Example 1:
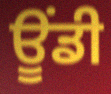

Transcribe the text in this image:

ਊਂਡੀ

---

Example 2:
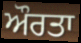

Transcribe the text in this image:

ਔਰਤਾ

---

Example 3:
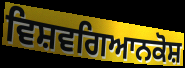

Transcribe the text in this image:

ਵਿਸ਼ਵਗਿਆਨਕੋਸ਼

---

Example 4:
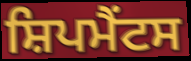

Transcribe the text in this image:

ਸ਼ਿਪਮੈਂਟਸ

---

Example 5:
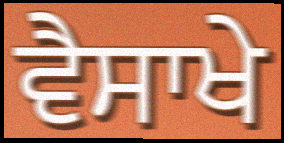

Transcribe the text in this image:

ਵੈਸਾਖੇ